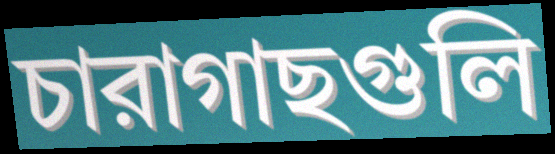
চারাগাছগুলি